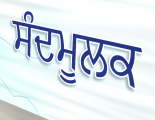
ਸੰਦਮੂਲਕ